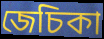
জেচিকা